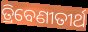
ତ୍ରିବେଣୀତୀର୍ଥ